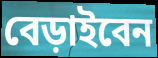
বেড়াইবেন